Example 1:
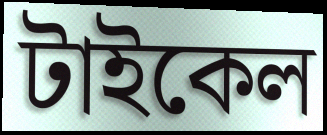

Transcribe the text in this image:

টাইকেল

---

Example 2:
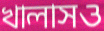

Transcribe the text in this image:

খালাসও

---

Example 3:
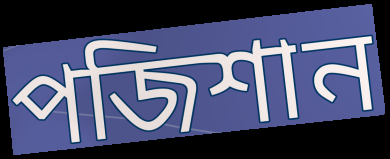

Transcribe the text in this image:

পজিশান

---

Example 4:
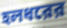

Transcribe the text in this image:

হলধরের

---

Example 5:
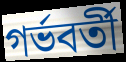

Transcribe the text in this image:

গর্ভবর্তী